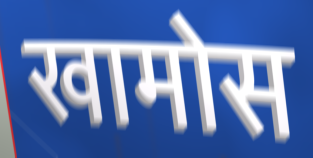
खामोस